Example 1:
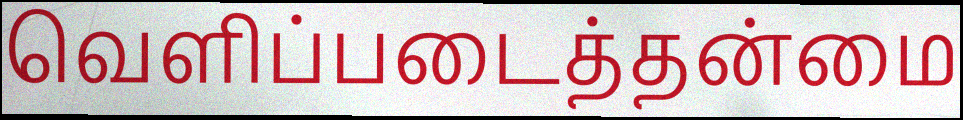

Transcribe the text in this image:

வெளிப்படைத்தன்மை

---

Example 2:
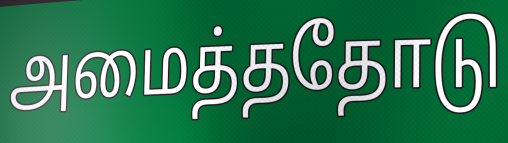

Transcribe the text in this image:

அமைத்ததோடு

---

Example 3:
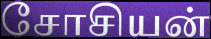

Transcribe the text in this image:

சோசியன்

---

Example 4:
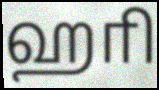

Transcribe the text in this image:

ஹரி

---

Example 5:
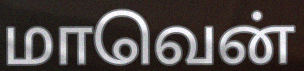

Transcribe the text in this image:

மாவென்